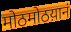
मोठमोठय़ानं